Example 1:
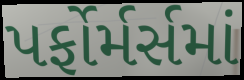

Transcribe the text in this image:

પર્ફોર્મર્સમાં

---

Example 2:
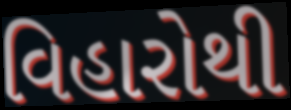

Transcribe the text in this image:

વિહારોથી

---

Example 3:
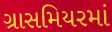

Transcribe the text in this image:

ગ્રાસમિયરમાં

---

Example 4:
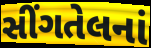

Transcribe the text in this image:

સીંગતેલનાં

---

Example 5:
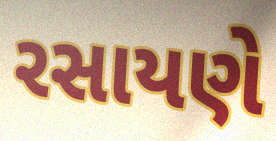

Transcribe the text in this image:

રસાયણે